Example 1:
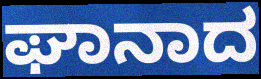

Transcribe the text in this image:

ಘಾನಾದ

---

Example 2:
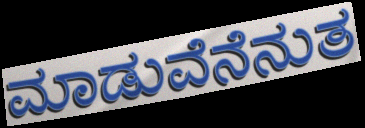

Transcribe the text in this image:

ಮಾಡುವೆನೆನುತ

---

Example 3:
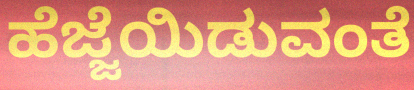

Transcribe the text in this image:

ಹೆಜ್ಜೆಯಿಡುವಂತೆ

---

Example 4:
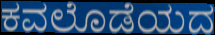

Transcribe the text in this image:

ಕವಲೊಡೆಯದ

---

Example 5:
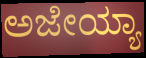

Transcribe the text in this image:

ಅಜೇಯ್ಯಾ